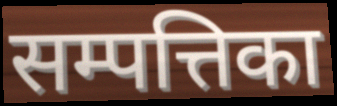
सम्पत्तिका